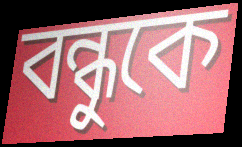
বন্ধুকে